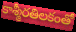
కాశ్మీరతిలకంతో